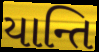
યાન્તિ